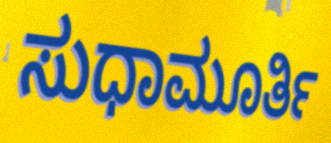
ಸುಧಾಮೂರ್ತಿ